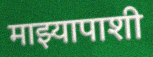
माझ्यापाशी